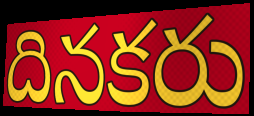
దినకరు